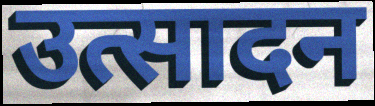
उत्सादन